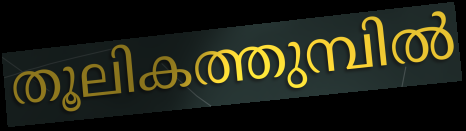
തൂലികത്തുമ്പിൽ